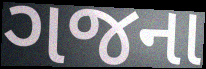
ગજના